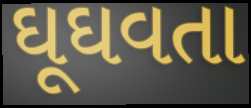
ઘૂઘવતા